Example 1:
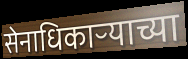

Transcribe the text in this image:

सेनाधिकाऱ्याच्या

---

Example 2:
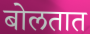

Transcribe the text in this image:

बोलतात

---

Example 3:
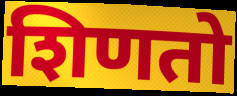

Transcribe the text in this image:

शिणतो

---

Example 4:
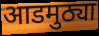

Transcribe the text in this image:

आडमुठ्या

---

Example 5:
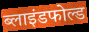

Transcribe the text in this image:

ब्लाइंडफोल्ड